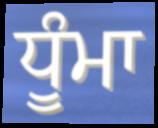
ਧੂੰਮਾ